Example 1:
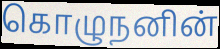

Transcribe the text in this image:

கொழுநனின்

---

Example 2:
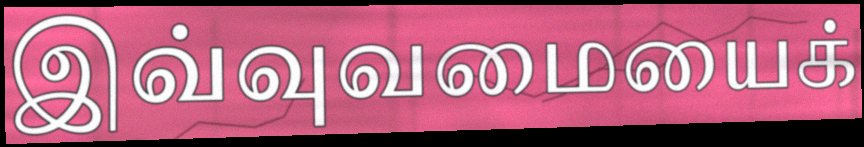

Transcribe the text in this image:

இவ்வுவமையைக்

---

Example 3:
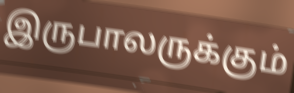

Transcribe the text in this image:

இருபாலருக்கும்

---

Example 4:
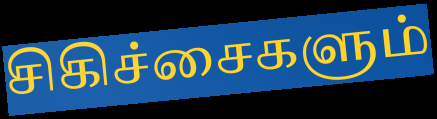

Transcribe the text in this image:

சிகிச்சைகளும்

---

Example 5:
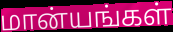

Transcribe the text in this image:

மான்யங்கள்